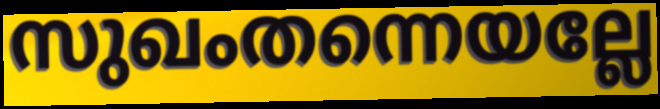
സുഖംതന്നെയല്ലേ